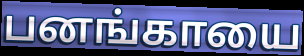
பனங்காயை